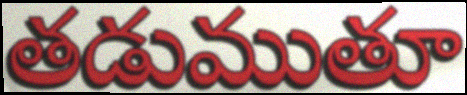
తడుముతూ